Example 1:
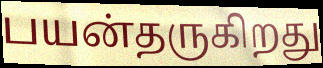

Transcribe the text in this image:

பயன்தருகிறது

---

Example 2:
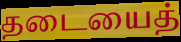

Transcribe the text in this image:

தடையைத்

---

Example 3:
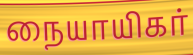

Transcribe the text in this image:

நையாயிகர்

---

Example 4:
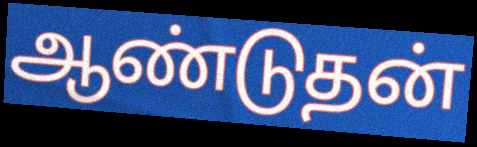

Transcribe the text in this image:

ஆண்டுதன்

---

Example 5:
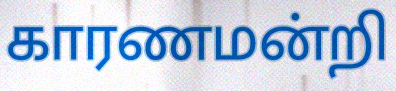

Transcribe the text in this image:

காரணமன்றி